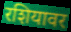
रशियावर